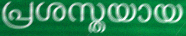
പ്രശസ്തയായ